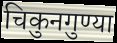
चिकुनगुण्या